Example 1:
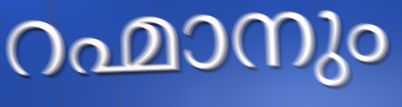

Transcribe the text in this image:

റഹ്മാനും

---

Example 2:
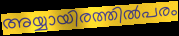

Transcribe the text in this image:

അയ്യായിരത്തിൽപരം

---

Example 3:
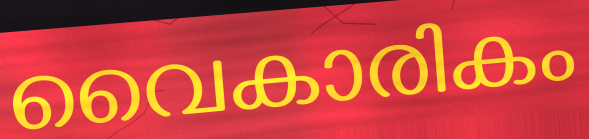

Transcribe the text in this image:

വൈകാരികം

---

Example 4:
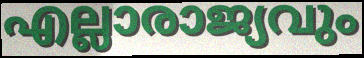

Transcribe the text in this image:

എല്ലാരാജ്യവും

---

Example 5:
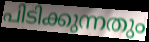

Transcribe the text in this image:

പിടിക്കുന്നതും